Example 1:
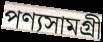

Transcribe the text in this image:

পণ্যসামগ্রী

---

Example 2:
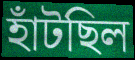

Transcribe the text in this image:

হাঁটছিল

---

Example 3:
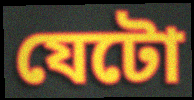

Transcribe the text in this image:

যেটো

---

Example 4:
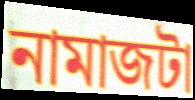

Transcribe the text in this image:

নামাজটা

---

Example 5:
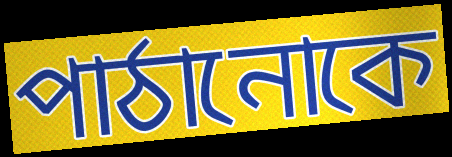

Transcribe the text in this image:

পাঠানোকে